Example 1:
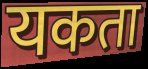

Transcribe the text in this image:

यकता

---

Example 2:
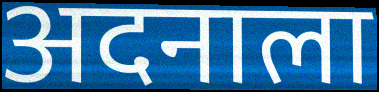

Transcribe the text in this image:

अदनाला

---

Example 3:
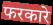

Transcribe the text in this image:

फरकारे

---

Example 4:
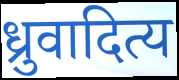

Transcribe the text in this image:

ध्रुवादित्य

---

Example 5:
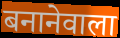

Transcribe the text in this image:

बनानेवाला